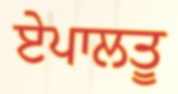
ਏਪਾਲਤੂ